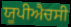
ਯੂਪੀਐਚਸੀ